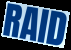
RAID